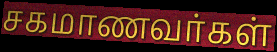
சகமாணவர்கள்